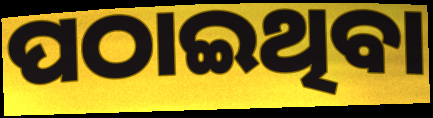
ପଠାଇଥିବା